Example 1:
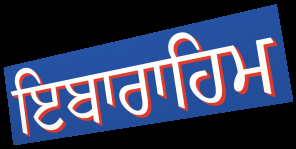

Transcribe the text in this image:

ਇਬਾਰਾਹਿਮ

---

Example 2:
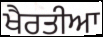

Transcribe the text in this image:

ਖੈਰਤੀਆ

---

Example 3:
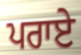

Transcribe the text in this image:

ਪਰਾਏ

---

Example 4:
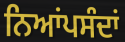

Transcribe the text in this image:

ਨਿਆਂਪਸੰਦਾਂ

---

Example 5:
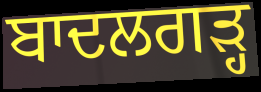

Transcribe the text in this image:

ਬਾਦਲਗੜ੍ਹ